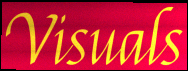
Visuals